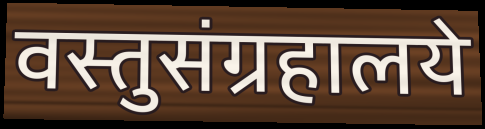
वस्तुसंग्रहालये